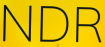
NDR